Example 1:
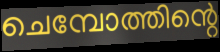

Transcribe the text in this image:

ചെമ്പോത്തിന്റെ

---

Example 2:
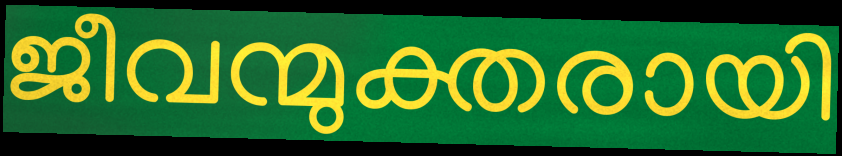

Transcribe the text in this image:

ജീവന്മുക്തരായി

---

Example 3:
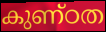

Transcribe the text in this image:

കുണ്ഠത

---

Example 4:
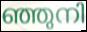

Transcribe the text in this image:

ഞ്ഞുനി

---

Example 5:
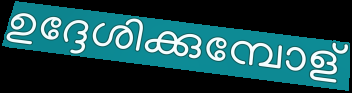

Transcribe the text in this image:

ഉദ്ദേശിക്കുമ്പോള്